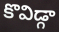
కొవిడ్గా